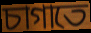
চাগাতে